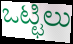
ಒಟ್ಟಿಲು